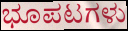
ಭೂಪಟಗಳು